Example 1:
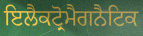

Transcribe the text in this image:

ਇਲੈਕਟ੍ਰੋਮੈਗਨੈਟਿਕ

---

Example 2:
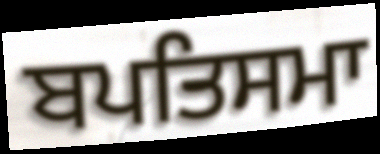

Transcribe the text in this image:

ਬਪਤਿਸਮਾ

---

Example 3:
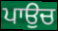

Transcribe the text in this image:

ਪਾਉਚ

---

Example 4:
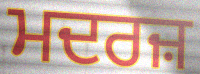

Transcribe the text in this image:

ਮਦਰਜ਼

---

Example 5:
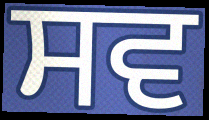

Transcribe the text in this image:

ਸਵ